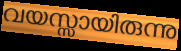
വയസ്സായിരുന്നു